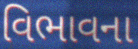
વિભાવના